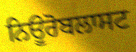
ਨਿਊਰੋਬਲਾਸਟ